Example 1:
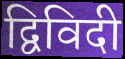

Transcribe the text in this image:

द्विविदी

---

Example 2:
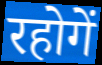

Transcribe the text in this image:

रहोगें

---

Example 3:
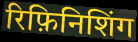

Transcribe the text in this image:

रिफ़िनिशिंग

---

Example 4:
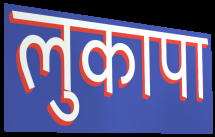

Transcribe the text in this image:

लुकापा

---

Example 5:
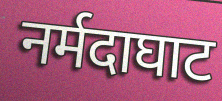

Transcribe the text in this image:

नर्मदाघाट